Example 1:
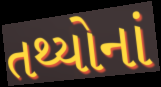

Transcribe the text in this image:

તથ્યોનાં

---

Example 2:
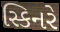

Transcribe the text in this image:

સ્કિનરે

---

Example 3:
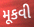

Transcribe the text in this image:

મૂકવી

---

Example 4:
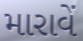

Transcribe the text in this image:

મારાવેં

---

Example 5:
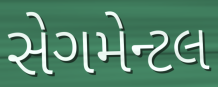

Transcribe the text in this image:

સેગમેન્ટલ